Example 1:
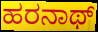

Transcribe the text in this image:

ಹರನಾಥ್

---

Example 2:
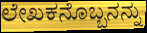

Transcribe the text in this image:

ಲೇಖಕನೊಬ್ಬನನ್ನು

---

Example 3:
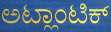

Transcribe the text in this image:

ಅಟ್ಲಾಂಟಿಕ್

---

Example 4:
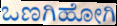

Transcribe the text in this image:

ಒಣಗಿಹೋಗಿ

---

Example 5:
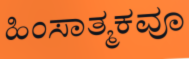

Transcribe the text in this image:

ಹಿಂಸಾತ್ಮಕವೂ